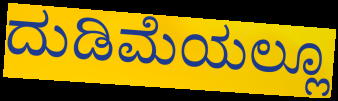
ದುಡಿಮೆಯಲ್ಲೂ